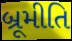
બ્રૂમીતિ